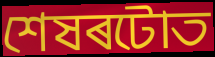
শেষৰটোত